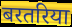
बरतरिया